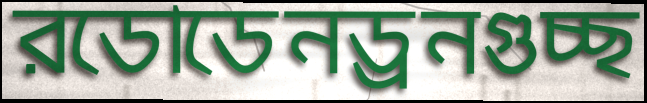
রডোডেনড্রনগুচ্ছ